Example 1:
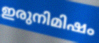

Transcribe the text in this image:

ഇരുനിമിഷം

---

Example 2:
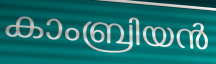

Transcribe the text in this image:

കാംബ്രിയൻ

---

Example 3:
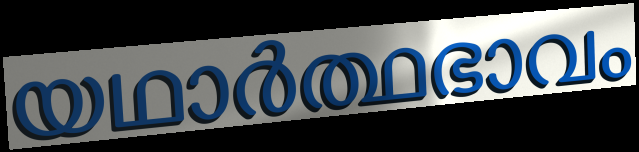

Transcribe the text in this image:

യഥാർത്ഥഭാവം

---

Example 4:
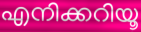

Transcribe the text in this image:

എനിക്കറിയൂ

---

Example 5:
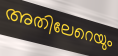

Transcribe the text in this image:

അതിലേറെയും